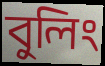
বুলিং